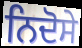
ਨਿਦੋਸੇ